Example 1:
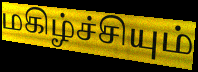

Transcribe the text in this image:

மகிழ்ச்சியும்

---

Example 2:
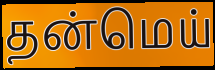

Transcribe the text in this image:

தன்மெய்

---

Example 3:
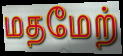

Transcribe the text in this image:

மதமேற்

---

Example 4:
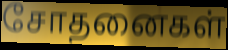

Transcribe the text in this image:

சோதனைகள்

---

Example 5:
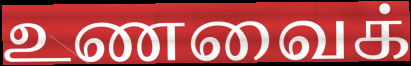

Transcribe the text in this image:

உணவைக்